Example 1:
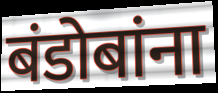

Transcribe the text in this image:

बंडोबांना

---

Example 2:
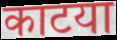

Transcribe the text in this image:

काटया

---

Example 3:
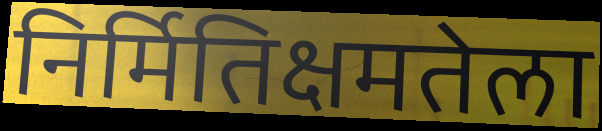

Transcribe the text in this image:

निर्मितिक्षमतेला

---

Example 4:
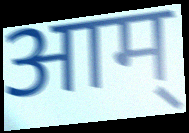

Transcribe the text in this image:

आम्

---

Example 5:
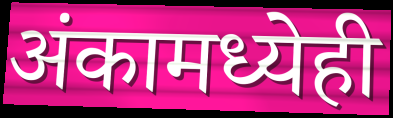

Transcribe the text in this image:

अंकामध्येही